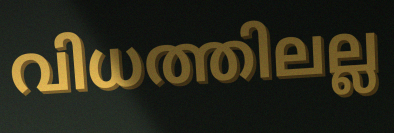
വിധത്തിലല്ല